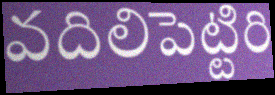
వదిలిపెట్టిరి